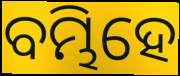
ବମ୍ଭିହେ